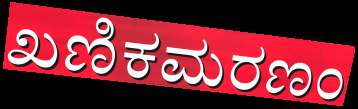
ಖಣಿಕಮರಣಂ